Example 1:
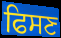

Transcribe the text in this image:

ਫਿਸਣ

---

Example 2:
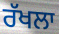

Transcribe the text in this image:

ਰੱਖਲਾ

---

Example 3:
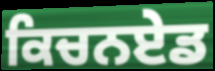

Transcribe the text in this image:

ਕਿਚਨਏਡ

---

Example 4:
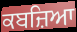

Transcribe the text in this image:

ਕਬਜ਼ਿਆ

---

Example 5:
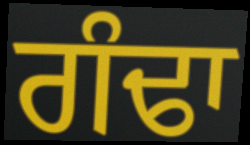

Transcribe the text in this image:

ਗੰਢਾ